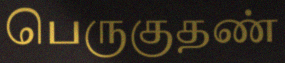
பெருகுதண்